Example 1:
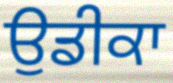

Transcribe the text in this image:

ਉਡੀਕਾ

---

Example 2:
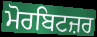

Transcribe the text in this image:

ਮੋਰਬਿਟਜ਼ਰ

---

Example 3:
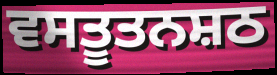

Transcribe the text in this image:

ਵਸਤੂਤਨਸ਼ਠ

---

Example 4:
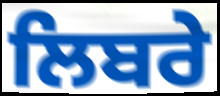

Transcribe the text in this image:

ਲਿਬਰੇ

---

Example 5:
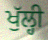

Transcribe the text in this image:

ਖੁੱਲ੍ਹੀ